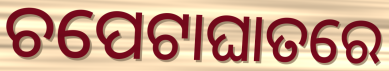
ଚପେଟାଘାତରେ